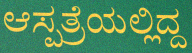
ಆಸ್ಪತ್ರೆಯಲ್ಲಿದ್ದ